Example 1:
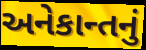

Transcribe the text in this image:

અનેકાન્તનું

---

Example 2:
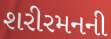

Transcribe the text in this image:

શરીરમનની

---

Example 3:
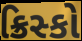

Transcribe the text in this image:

ક્રિસ્કો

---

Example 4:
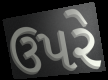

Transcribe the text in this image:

ઉપરે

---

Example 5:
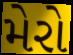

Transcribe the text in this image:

મેરો